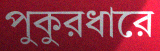
পুকুরধারে